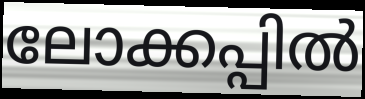
ലോക്കപ്പിൽ